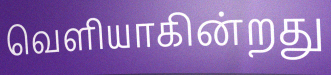
வெளியாகின்றது